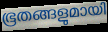
ഭൂതങ്ങളുമായി